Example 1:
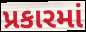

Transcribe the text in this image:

પ્રકારમાં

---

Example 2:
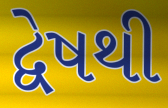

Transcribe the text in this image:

દ્વેષથી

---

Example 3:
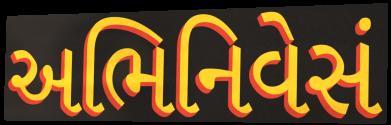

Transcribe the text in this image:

અભિનિવેસં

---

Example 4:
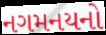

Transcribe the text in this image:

નગમનયનો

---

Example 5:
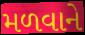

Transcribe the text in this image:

મળવાને